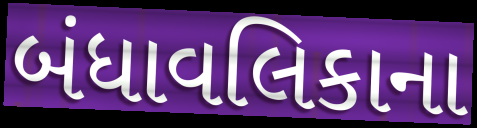
બંધાવલિકાના